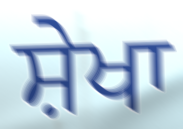
ਸ਼ੇਖਾ